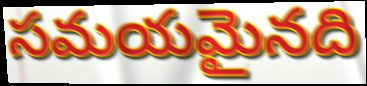
సమయమైనది